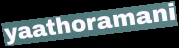
yaathoramani